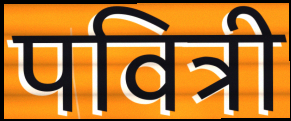
पवित्री